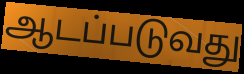
ஆடப்படுவது